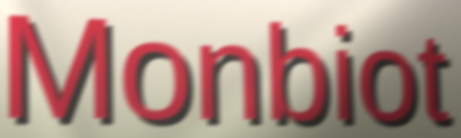
Monbiot